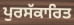
ਪੁਰਸੱਕਾਰਿਤ